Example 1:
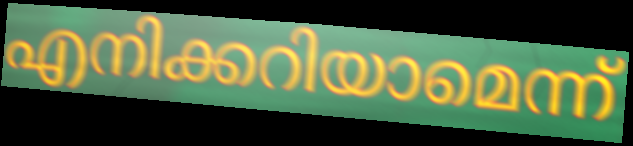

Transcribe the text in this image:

എനിക്കറിയാമെന്ന്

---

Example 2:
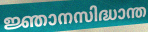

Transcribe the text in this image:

ജ്ഞാനസിദ്ധാന്ത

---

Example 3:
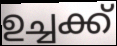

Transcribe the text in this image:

ഉച്ചക്ക്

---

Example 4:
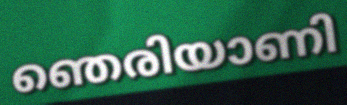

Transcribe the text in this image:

ഞെരിയാണി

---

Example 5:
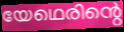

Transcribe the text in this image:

യേഥെരിന്റെ